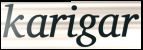
karigar